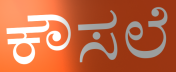
ಕೌಸಲೆ